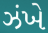
ઝંખે